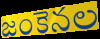
జంకెనల